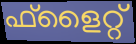
ഫ്ളൈറ്റ്